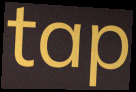
tap